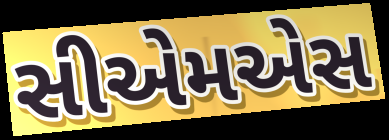
સીએમએસ